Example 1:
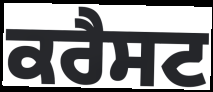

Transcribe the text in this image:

ਕਰੈਸਟ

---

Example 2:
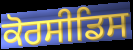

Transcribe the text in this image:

ਕੋਰਸੀਡਿਸ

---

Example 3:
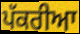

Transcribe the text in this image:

ਪੱਕਰੀਆ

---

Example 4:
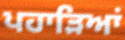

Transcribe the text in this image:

ਪਹਾੜਿਆਂ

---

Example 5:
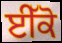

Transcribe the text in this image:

ਈੱਕੋ